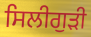
ਸਿਲੀਗੁੜੀ